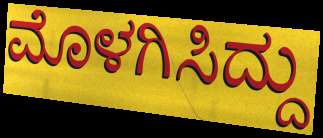
ಮೊಳಗಿಸಿದ್ದು